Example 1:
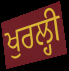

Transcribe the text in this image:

ਖੁਰਲ੍ਹੀ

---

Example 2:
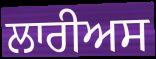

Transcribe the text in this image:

ਲਾਰੀਅਸ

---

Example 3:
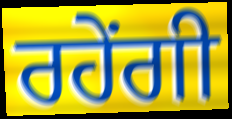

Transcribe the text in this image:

ਰਹੇਂਗੀ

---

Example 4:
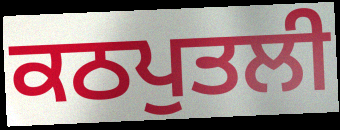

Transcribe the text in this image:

ਕਠਪੁਤਲੀ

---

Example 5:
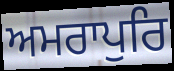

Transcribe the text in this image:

ਅਮਰਾਪੁਰਿ